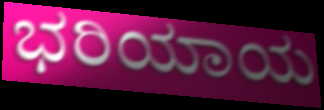
ಭರಿಯಾಯ